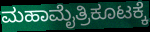
ಮಹಾಮೈತ್ರಿಕೂಟಕ್ಕೆ